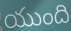
యుంది